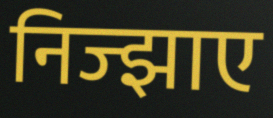
निज्झाए